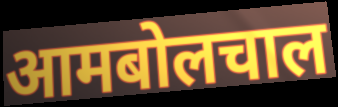
आमबोलचाल